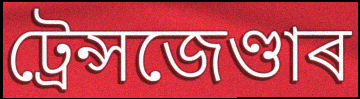
ট্ৰেন্সজেণ্ডাৰ